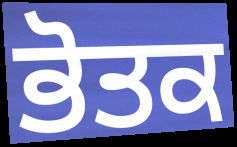
ਭੋਤਕ